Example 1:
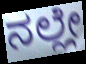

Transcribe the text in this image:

ನಲ್ಲೇ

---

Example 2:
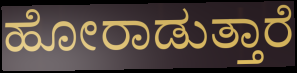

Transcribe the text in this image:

ಹೋರಾಡುತ್ತಾರೆ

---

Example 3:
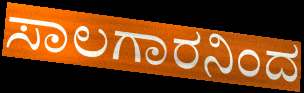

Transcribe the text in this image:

ಸಾಲಗಾರನಿಂದ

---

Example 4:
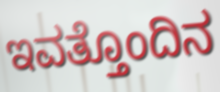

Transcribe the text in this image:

ಇವತ್ತೊಂದಿನ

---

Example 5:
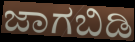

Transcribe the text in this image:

ಜಾಗಬಿಡಿ